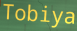
Tobiya